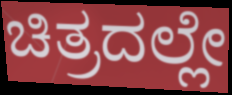
ಚಿತ್ರದಲ್ಲೇ